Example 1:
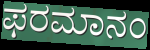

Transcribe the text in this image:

ಫರಮಾನಂ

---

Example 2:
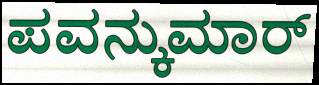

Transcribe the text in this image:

ಪವನ್ಕುಮಾರ್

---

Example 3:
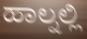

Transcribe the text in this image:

ಹಾಲ್ನಲ್ಲಿ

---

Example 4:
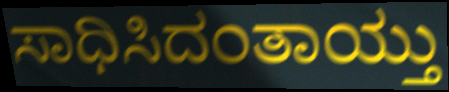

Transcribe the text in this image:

ಸಾಧಿಸಿದಂತಾಯ್ತು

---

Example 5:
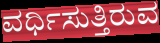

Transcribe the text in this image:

ವರ್ಧಿಸುತ್ತಿರುವ